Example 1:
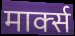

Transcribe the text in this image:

मार्क्‍स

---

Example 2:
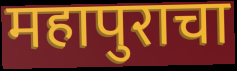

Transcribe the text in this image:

महापुराचा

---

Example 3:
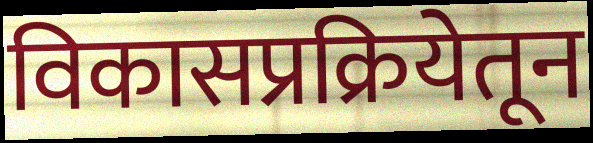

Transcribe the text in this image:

विकासप्रक्रियेतून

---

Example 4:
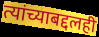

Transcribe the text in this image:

त्यांच्याबद्दलही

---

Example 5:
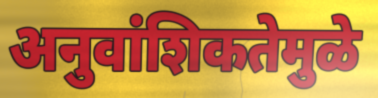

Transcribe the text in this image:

अनुवांशिकतेमुळे